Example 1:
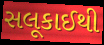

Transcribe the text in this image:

સલૂકાઈથી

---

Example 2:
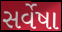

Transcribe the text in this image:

સર્વેષા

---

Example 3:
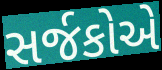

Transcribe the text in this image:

સર્જકોએ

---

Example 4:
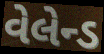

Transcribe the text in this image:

વેલેન્ડ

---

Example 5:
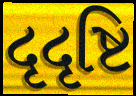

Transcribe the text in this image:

દૃદૃષ્ટિ